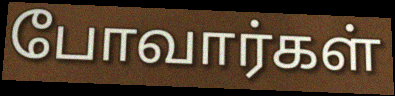
போவார்கள்